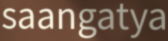
saangatya